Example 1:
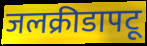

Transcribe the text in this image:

जलक्रीडापटू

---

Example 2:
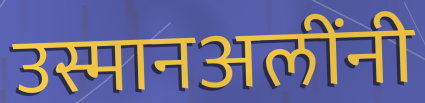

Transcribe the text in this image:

उस्मानअलींनी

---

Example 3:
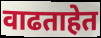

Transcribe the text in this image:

वाढताहेत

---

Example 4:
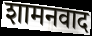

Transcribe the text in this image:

शामनवाद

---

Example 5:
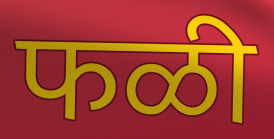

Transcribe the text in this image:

फळी